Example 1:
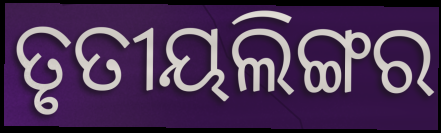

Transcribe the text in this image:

ତୃତୀୟଲିଙ୍ଗର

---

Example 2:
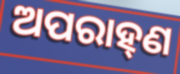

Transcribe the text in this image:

ଅପରାହ୍‍ଣ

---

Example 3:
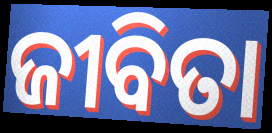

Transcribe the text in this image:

ଜୀବିତା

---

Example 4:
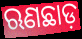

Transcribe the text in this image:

ଋଣଛାଡ଼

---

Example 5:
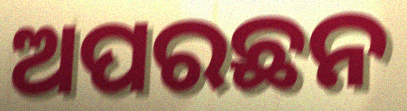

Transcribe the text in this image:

ଅପରଛନ